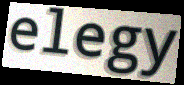
elegy